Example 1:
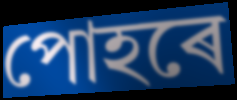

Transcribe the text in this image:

পোহৰে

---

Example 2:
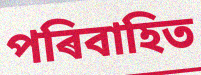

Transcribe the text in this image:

পৰিবাহিত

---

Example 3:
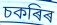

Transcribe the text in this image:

চকৰিৰ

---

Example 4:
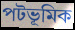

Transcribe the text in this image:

পটভূমিক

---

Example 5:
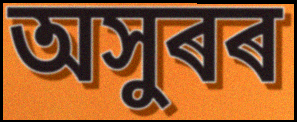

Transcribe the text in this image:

অসুৰৰ